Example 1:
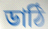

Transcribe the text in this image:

ডাঠি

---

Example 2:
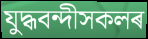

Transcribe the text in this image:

যুদ্ধবন্দীসকলৰ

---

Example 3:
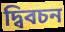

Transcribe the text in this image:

দ্বিবচন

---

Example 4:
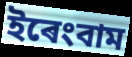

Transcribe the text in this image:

ইৰেংবাম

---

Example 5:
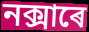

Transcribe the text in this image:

নক্সাৰে